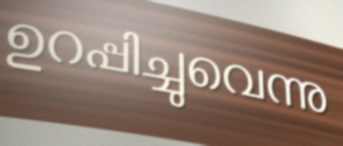
ഉറപ്പിച്ചുവെന്നു